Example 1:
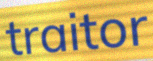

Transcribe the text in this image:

traitor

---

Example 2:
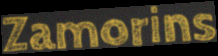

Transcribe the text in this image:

Zamorins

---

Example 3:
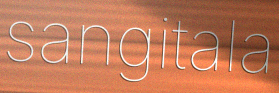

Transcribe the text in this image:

sangitala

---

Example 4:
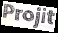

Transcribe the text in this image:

Projit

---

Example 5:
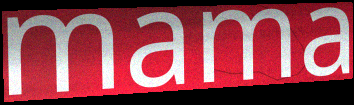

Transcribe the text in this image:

mama